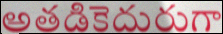
అతడికెదురుగా